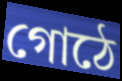
গোঠে